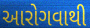
આરોગવાથી